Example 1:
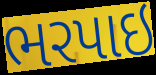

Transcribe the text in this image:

ભરપાઇ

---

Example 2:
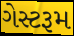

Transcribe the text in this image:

ગેસ્ટરૂમ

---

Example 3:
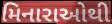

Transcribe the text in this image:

મિનારાઓથી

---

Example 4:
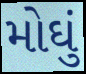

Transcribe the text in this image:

મોઘું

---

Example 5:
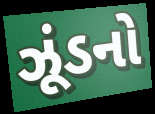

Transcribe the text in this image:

ઝૂંડનો